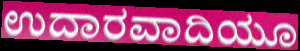
ಉದಾರವಾದಿಯೂ